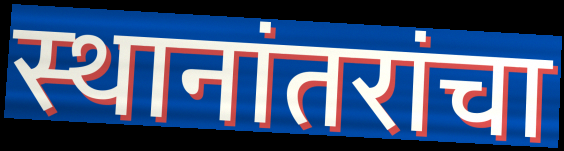
स्थानांतरांचा